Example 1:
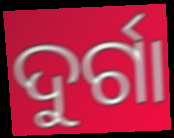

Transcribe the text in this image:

ଦୁର୍ଗା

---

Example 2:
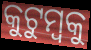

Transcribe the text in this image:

କୁଟୁମ୍ବକୁ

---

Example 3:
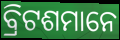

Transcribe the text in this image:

ବ୍ରିଟଶମାନେ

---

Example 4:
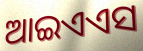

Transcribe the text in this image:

ଆଇଏଏସ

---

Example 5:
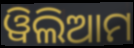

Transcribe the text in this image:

ୱିଲିଆମ